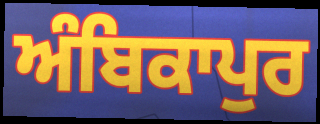
ਅੰਬਿਕਾਪੁਰ